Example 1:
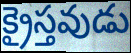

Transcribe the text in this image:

క్రైస్తవుడు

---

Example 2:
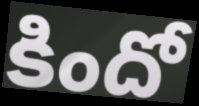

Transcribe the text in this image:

కిందో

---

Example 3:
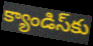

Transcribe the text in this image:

క్యాండిస్‌కు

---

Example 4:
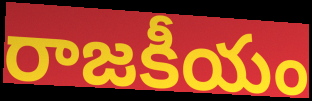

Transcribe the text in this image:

రాజకీయం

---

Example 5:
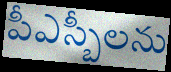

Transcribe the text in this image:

పీఎస్బీలను